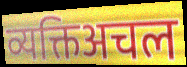
व्यक्तिअचल